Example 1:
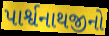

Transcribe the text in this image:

પાર્શ્વનાથજીનો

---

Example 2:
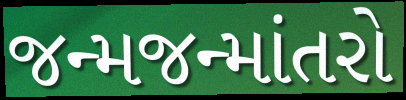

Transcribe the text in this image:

જન્મજન્માંતરો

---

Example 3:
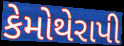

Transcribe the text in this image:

કેમોથેરાપી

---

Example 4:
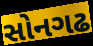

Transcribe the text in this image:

સોનગઢ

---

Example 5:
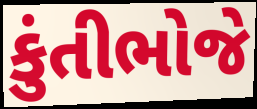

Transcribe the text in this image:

કુંતીભોજે